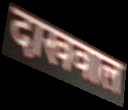
दाखवाल